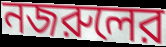
নজরুলের